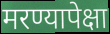
मरण्यापेक्षा